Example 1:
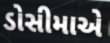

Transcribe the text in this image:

ડોસીમાએ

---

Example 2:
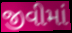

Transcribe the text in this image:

જીવીમાં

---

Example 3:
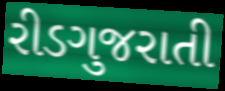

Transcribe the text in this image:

રીડગુજરાતી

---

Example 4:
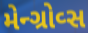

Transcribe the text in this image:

મેન્ગ્રોવ્સ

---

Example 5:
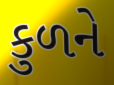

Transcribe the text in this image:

કુળને